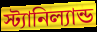
স্ট্যানিল্যান্ড